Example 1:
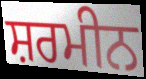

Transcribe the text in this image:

ਸ਼ਰਮੀਨ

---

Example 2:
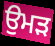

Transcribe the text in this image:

ਉਮੜ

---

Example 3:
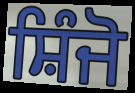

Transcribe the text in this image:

ਸ਼ਿੰਜੋ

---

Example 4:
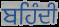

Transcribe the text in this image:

ਬਹਿੰਦੀ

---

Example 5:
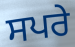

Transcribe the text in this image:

ਸਪਰੇ